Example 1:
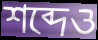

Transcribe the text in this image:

শব্দেও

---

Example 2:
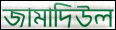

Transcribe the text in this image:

জামাদিউল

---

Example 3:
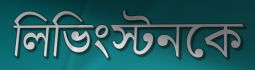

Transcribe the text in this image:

লিভিংস্টনকে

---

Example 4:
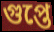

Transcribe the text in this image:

গুপ্তে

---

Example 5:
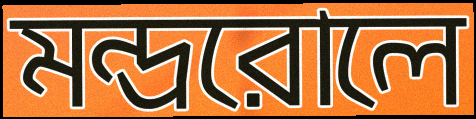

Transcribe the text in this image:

মন্দ্ররোলে